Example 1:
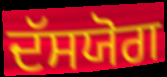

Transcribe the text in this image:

ਦੱਸਯੋਗ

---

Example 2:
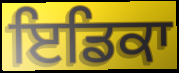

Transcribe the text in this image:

ਇਡਿਕਾ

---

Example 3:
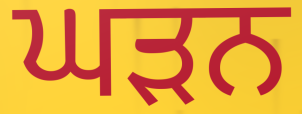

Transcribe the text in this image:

ਘੜਨ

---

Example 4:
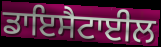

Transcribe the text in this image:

ਡਾਇਸੈਟਾਈਲ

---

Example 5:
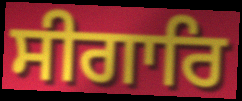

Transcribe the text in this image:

ਸੀਗਾਰਿ